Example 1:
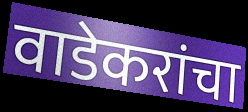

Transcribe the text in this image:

वाडेकरांचा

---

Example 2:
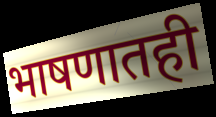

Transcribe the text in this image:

भाषणातही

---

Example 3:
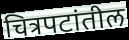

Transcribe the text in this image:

चित्रपटांतील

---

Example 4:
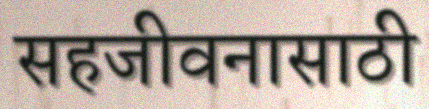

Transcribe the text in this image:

सहजीवनासाठी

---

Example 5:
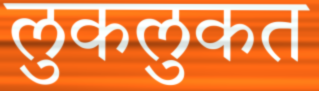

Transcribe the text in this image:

लुकलुकत